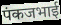
पंकजभाई